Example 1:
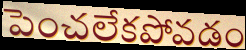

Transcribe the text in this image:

పెంచలేకపోవడం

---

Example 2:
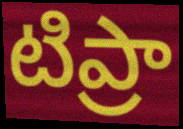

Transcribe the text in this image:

టిప్రా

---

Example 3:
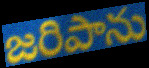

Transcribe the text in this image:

జరిపాను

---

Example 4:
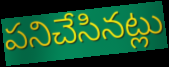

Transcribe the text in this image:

పనిచేసినట్లు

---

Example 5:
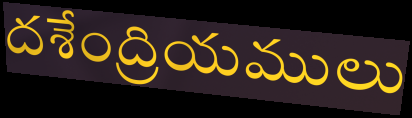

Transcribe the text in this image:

దశేంద్రియములు